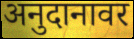
अनुदानावर